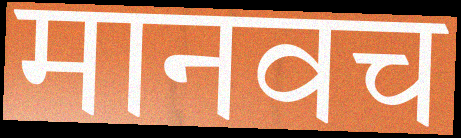
मानवच